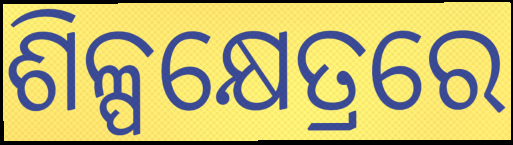
ଶିଳ୍ପକ୍ଷେତ୍ରରେ